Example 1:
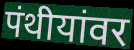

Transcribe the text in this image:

पंथीयांवर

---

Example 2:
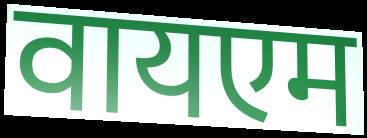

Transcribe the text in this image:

वायएम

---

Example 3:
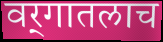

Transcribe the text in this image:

वर्गातलाच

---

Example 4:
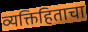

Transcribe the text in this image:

व्यक्तिहिताचा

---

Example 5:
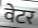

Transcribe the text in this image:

वेटर